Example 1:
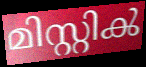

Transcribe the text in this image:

മിസ്റ്റിൿ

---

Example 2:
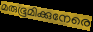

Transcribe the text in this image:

മരുഭൂമിക്കുനേരെ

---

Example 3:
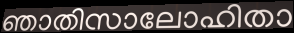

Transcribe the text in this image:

ഞാതിസാലോഹിതാ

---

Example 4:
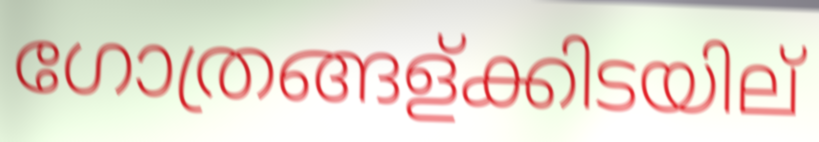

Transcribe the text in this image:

ഗോത്രങ്ങള്ക്കിടയില്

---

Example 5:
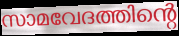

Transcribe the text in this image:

സാമവേദത്തിന്റെ